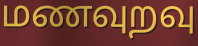
மணவுறவு